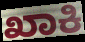
ಖಾಕಿ